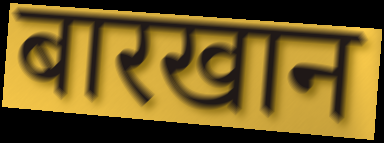
बारखान